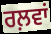
ਰਲ਼ਵਾਂ